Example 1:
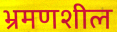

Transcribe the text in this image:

भ्रमणशील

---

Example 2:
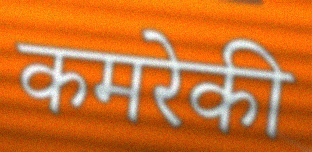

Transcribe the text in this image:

कमरेकी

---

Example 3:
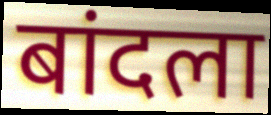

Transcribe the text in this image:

बांदला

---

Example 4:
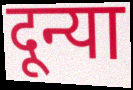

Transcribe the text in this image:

दून्या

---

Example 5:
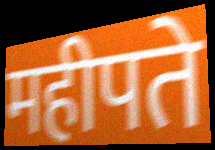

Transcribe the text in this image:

महीपते